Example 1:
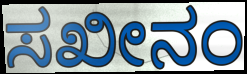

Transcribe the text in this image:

ಸಖೀನಂ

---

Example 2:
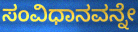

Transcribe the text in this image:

ಸಂವಿಧಾನವನ್ನೇ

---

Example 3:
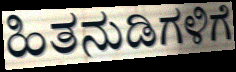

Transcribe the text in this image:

ಹಿತನುಡಿಗಳಿಗೆ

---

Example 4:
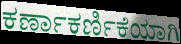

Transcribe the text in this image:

ಕರ್ಣಾಕರ್ಣಿಕೆಯಾಗಿ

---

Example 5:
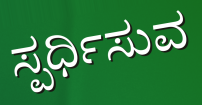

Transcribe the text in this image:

ಸ್ಪರ್ಧಿಸುವ